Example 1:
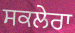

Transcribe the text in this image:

ਸਕਲੇਰਾ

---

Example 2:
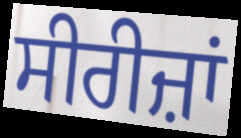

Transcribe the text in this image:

ਸੀਰੀਜ਼ਾਂ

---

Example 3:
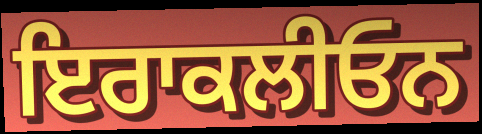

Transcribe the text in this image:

ਇਰਾਕਲੀਓਨ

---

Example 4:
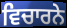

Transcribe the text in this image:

ਵਿਚਾਰਨੇ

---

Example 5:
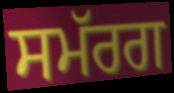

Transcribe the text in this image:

ਸਮੱਰਗ